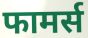
फामर्स